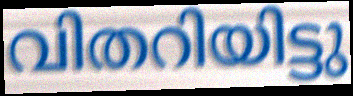
വിതറിയിട്ടു